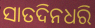
ସାତଦିନଧରି